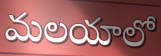
మలయాలో